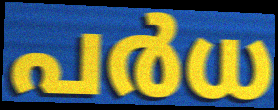
പർധ